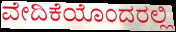
ವೇದಿಕೆಯೊಂದರಲ್ಲಿ